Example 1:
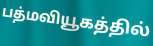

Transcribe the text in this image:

பத்மவியூகத்தில்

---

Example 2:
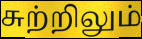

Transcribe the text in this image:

சுற்றிலும்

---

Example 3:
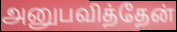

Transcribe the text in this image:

அனுபவித்தேன்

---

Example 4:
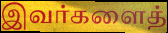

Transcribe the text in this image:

இவர்களைத்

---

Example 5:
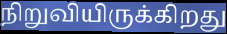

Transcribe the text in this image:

நிறுவியிருக்கிறது